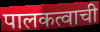
पालकत्वाची